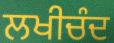
ਲਖੀਚੰਦ